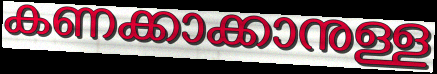
കണക്കാക്കാനുള്ള